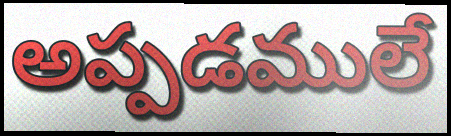
అప్పడములే